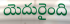
యెదురైంది